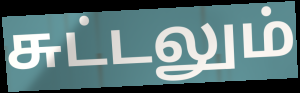
சுட்டலும்